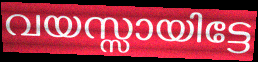
വയസ്സായിട്ടേ